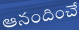
ఆనందించే